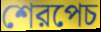
শেরপেচ